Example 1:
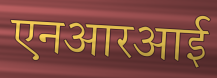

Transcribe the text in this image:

एनआरआई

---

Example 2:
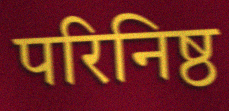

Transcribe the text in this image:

परिनिष्ठ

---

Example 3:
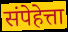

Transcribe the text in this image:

संपेहेत्ता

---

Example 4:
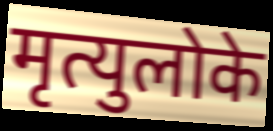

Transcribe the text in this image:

मृत्युलोके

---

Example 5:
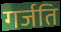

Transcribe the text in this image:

गर्जति